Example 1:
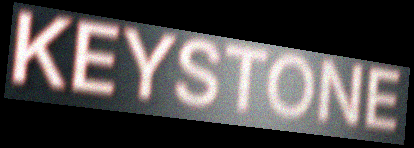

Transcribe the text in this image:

KEYSTONE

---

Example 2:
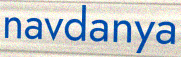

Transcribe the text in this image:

navdanya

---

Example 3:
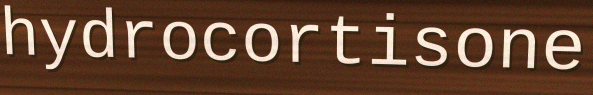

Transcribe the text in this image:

hydrocortisone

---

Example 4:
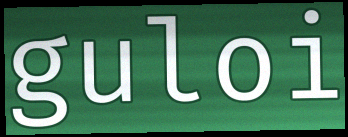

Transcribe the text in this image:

guloi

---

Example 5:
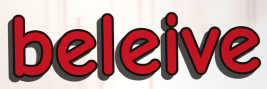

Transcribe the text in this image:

beleive